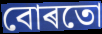
বোৰতো